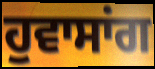
ਹੁਵਾਸਾਂਗ